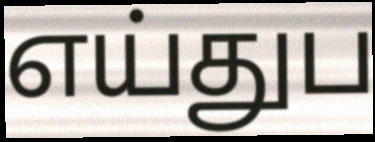
எய்துப